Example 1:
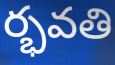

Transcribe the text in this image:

ర్భవతి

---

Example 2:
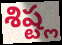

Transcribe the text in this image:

శిష్ట్ల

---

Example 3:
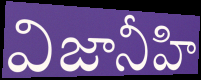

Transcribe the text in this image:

విజానీహి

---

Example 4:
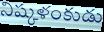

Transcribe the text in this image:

నిష్కళంకుడు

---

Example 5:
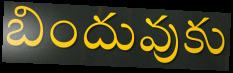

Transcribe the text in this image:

బిందువుకు